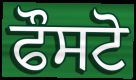
ਫੌਸਟੋ